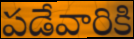
పడేవారికి